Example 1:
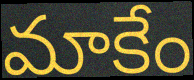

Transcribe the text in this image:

మాకేం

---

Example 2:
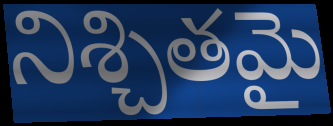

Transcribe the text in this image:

నిశ్చితమై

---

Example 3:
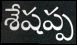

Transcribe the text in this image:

శేషప్ప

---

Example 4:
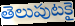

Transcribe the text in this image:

తెలుపుటకై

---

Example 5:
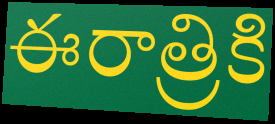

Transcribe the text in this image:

ఈరాత్రికి